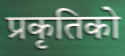
प्रकृतिको